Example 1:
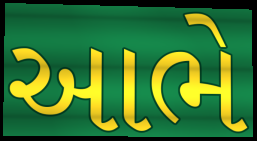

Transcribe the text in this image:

આભે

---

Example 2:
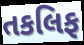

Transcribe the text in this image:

તકલિફ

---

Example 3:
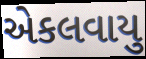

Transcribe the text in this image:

એકલવાયુ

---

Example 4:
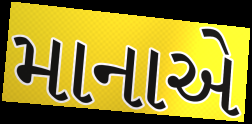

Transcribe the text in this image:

માનાએ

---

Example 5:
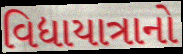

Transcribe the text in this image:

વિદ્યાયાત્રાનો